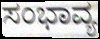
ಸಂಭಾವ್ಯ